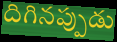
దిగినప్పుడు